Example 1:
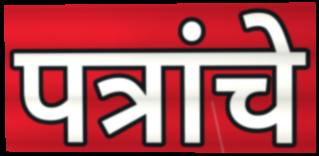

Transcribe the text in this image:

पत्रांचे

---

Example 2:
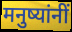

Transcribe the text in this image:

मनुष्यांनीं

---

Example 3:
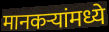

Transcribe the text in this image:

मानकऱ्यांमध्ये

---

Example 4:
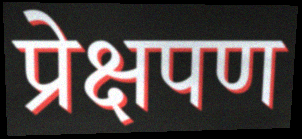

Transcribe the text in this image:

प्रेक्षपण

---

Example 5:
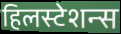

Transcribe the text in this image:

हिलस्टेशन्स